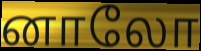
னாலோ